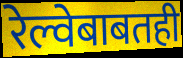
रेल्वेबाबतही